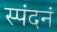
स्पंदनं